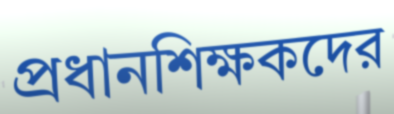
প্রধানশিক্ষকদের